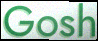
Gosh